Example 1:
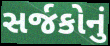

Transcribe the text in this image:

સર્જકોનું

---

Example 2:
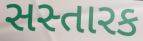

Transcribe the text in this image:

સસ્તારક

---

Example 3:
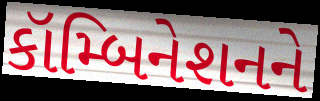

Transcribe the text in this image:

કૉમ્બિનેશનને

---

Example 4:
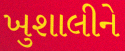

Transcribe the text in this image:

ખુશાલીને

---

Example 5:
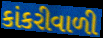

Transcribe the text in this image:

કાંકરીવાળી